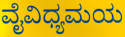
ವೈವಿಧ್ಯಮಯ